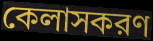
কেলাসকরণ